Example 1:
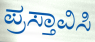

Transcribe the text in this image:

ಪ್ರಸ್ತಾವಿಸಿ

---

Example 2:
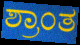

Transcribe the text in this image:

ಶ್ರಾಂತ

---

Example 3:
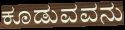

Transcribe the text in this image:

ಕೂಡುವವನು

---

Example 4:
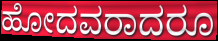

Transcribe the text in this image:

ಹೋದವರಾದರೂ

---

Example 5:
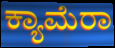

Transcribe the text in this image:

ಕ್ಯಾಮೆರಾ